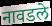
नावडले